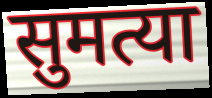
सुमत्या